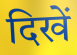
दिखें